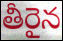
తీరైన